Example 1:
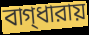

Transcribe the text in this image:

বাগ্‌ধারায়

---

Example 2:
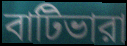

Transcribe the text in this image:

বাটিভারা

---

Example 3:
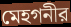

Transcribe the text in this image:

মেহগনীর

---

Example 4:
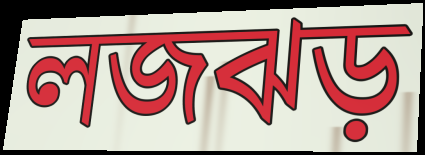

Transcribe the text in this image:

লজঝড়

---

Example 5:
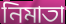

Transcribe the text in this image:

নিমাতা